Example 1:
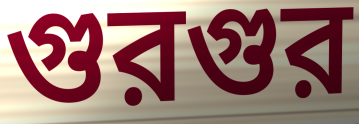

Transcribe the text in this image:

গুরগুর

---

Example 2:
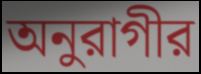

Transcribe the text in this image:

অনুরাগীর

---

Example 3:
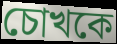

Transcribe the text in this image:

চোখকে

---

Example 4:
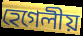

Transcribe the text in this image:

হেগেলীয়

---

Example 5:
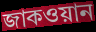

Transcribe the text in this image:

জাকওয়ান